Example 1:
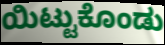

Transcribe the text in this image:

ಯಿಟ್ಟುಕೊಂಡು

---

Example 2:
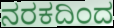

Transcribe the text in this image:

ನರಕದಿಂದ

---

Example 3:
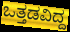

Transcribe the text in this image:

ಒತ್ತಡವಿದ್ದ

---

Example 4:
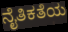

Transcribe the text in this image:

ನೈತಿಕತೆಯ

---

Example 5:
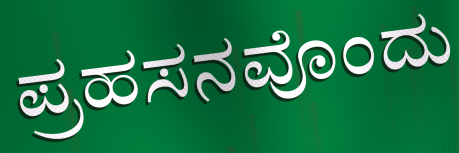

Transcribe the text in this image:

ಪ್ರಹಸನವೊಂದು